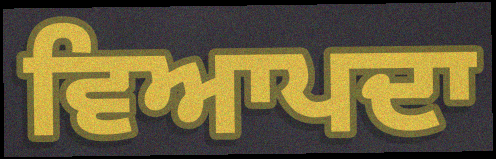
ਵਿਆਪਦਾ